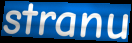
stranu